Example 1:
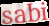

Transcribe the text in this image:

sabi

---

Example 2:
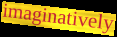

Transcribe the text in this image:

imaginatively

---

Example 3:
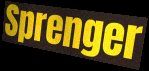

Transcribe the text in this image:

Sprenger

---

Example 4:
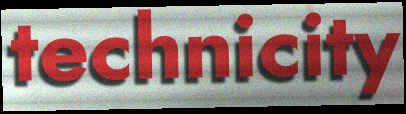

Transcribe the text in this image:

technicity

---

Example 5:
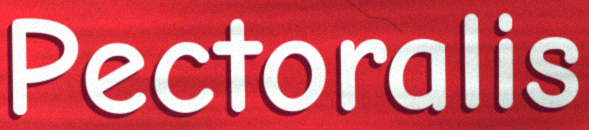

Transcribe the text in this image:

Pectoralis